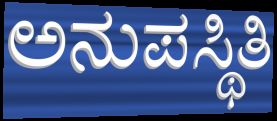
ಅನುಪಸ್ಥಿತಿ